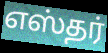
எஸ்தர்